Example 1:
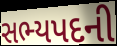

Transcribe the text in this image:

સભ્યપદની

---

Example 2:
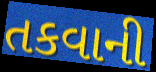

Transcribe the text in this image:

તકવાની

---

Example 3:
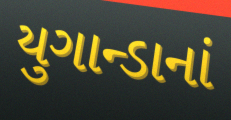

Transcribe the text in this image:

યુગાન્ડાનાં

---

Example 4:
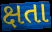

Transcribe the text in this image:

ક્ષતા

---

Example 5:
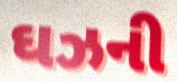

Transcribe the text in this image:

ઘઝની